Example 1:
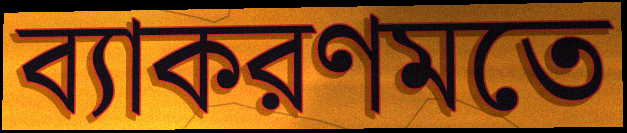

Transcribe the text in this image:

ব্যাকরণমতে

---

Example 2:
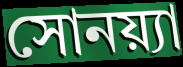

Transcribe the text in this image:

সোনয়্যা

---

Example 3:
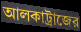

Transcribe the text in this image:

আলকাট্রাজের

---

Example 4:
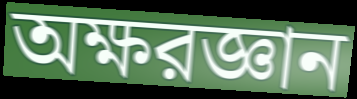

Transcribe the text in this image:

অক্ষরজ্ঞান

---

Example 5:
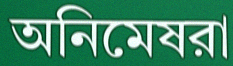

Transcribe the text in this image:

অনিমেষরা